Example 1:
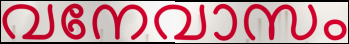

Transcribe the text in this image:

വനേവാസം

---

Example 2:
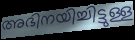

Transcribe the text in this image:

അഭിനയിച്ചിട്ടുള്ള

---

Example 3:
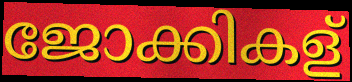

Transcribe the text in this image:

ജോക്കികള്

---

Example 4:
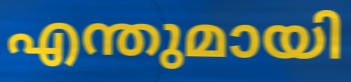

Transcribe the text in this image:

എന്തുമായി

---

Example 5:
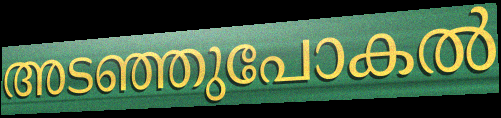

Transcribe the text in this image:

അടഞ്ഞുപോകൽ